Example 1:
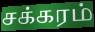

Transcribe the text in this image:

சக்கரம்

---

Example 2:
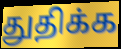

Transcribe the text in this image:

துதிக்க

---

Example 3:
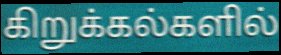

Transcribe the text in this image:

கிறுக்கல்களில்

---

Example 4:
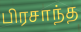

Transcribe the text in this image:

பிரசாந்த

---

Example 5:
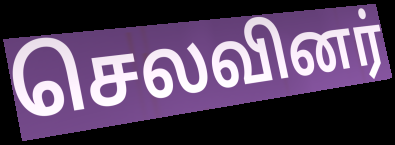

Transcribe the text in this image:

செலவினர்